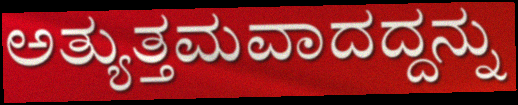
ಅತ್ಯುತ್ತಮವಾದದ್ದನ್ನು